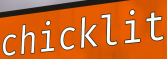
chicklit